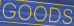
GOODS